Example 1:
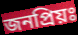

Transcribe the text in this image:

জনপ্রিয়ঃ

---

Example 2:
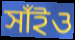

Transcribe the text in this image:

সাঁইও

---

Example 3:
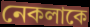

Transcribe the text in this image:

নেকলাকে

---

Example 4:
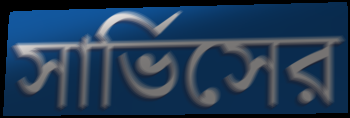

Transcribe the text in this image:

সার্ভিসের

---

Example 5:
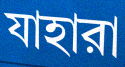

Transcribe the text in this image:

যাহারা